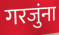
गरजुंना